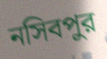
নসিবপুর